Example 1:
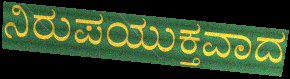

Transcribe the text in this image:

ನಿರುಪಯುಕ್ತವಾದ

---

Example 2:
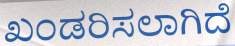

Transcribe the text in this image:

ಖಂಡರಿಸಲಾಗಿದೆ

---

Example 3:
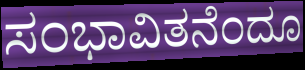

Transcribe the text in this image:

ಸಂಭಾವಿತನೆಂದೂ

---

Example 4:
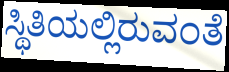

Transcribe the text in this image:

ಸ್ಥಿತಿಯಲ್ಲಿರುವಂತೆ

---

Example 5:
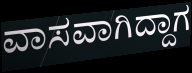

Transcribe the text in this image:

ವಾಸವಾಗಿದ್ದಾಗ